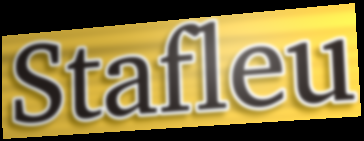
Stafleu